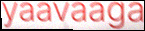
yaavaaga